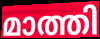
മാത്തി